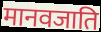
मानवजाति